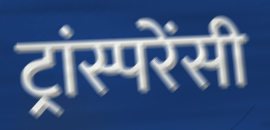
ट्रांस्परेंसी